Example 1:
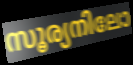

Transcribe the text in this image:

സൂര്യനിലോ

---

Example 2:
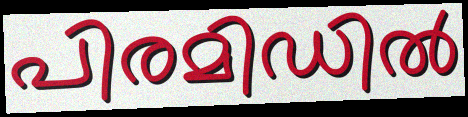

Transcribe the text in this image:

പിരമിഡിൽ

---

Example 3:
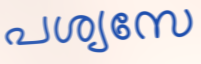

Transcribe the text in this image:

പശ്യസേ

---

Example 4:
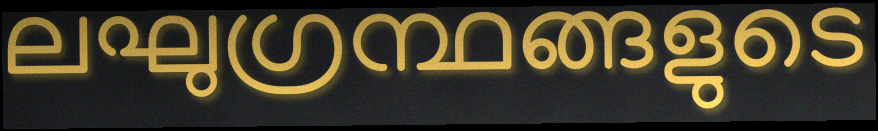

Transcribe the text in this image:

ലഘുഗ്രന്ഥങ്ങളുടെ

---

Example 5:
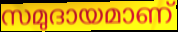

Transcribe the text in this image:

സമുദായമാണ്